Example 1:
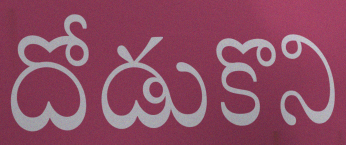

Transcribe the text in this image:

దోడుకొని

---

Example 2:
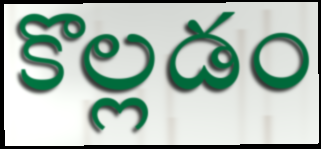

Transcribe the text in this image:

కొల్లడం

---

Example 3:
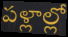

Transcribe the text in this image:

పళ్లాల్లో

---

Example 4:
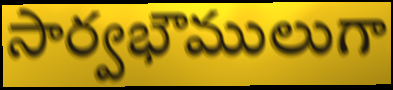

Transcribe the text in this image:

సార్వభౌములుగా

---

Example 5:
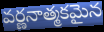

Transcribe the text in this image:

వర్ణనాత్మకమైన